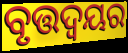
ବୃତ୍ତଦ୍ଵୟର